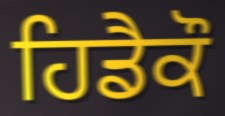
ਹਿਡੈਕੌ